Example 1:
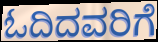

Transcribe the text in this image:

ಓದಿದವರಿಗೆ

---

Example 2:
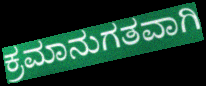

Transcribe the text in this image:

ಕ್ರಮಾನುಗತವಾಗಿ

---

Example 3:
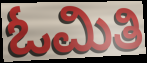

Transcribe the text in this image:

ಓಮಿತಿ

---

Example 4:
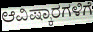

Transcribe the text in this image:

ಆವಿಷ್ಕಾರಗಳಿಗೆ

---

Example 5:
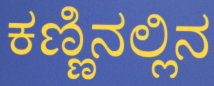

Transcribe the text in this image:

ಕಣ್ಣಿನಲ್ಲಿನ